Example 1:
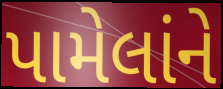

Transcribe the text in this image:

પામેલાંને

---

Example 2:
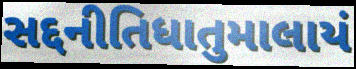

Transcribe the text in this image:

સદ્દનીતિધાતુમાલાયં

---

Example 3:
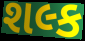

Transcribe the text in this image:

શલ્ક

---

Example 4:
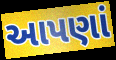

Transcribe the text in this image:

આપણાં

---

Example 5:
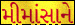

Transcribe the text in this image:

મીમાંસાને